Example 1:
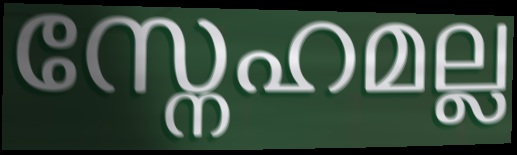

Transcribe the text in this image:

സ്നേഹമല്ല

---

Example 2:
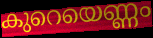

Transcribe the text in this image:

കുറെയെണ്ണം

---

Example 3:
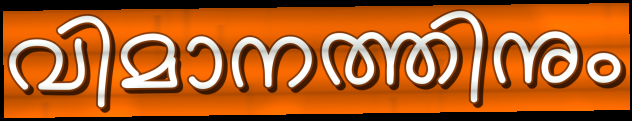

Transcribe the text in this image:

വിമാനത്തിനും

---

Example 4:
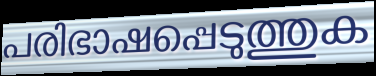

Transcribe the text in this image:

പരിഭാഷപ്പെടുത്തുക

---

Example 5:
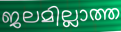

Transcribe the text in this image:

ജലമില്ലാത്ത